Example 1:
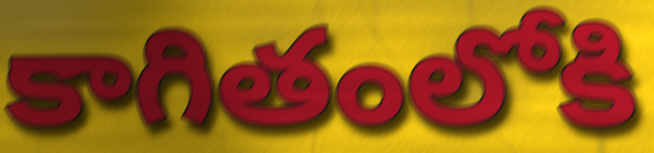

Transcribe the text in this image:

కాగితంలోకి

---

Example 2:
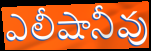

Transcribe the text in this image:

ఎలీషానీవు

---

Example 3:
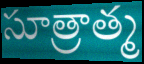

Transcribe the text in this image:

సూత్రాత్మ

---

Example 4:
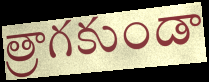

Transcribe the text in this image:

త్రాగకుండా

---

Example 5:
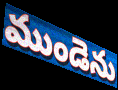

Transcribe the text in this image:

ముండెను